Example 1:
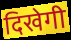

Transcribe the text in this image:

दिखेगी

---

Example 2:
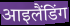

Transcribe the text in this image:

आइलैंडिंग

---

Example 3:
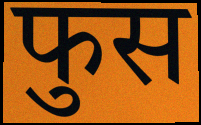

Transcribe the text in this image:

फुस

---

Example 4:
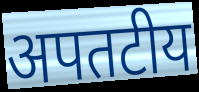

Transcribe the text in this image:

अपतटीय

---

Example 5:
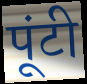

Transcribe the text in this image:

पूंटी